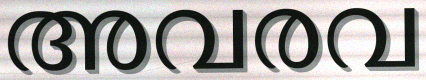
അവരവ